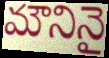
మౌనినై